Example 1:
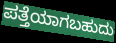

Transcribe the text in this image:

ಪತ್ತೆಯಾಗಬಹುದು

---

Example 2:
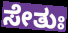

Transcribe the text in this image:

ಸೇತುಃ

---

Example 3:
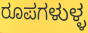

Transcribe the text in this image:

ರೂಪಗಳುಳ್ಳ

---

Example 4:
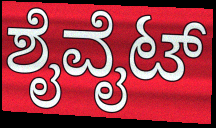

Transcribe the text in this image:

ಶೈವೈಟ್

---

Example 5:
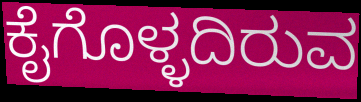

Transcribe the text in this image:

ಕೈಗೊಳ್ಳದಿರುವ